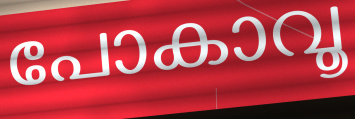
പോകാവൂ